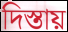
দিস্তায়